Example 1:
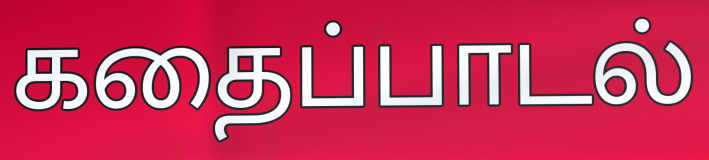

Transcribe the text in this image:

கதைப்பாடல்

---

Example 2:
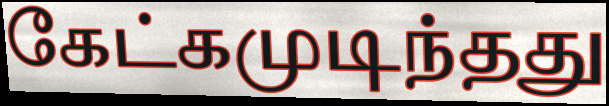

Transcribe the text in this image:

கேட்கமுடிந்தது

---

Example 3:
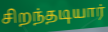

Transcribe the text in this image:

சிறந்தடியார்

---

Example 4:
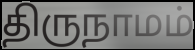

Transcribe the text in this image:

திருநாமம்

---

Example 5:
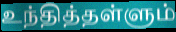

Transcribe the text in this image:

உந்தித்தள்ளும்